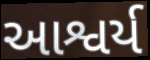
આશ્વર્ય